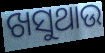
ଖସୁଥାଉ